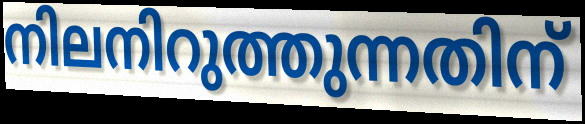
നിലനിറുത്തുന്നതിന്